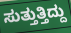
ಸುತ್ತುತ್ತಿದ್ದು